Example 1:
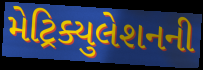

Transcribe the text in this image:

મેટ્રિક્યુલેશનની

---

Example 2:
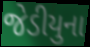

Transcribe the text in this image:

જેડીયુના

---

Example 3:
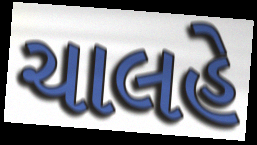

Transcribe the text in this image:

ચાલહે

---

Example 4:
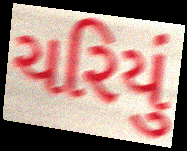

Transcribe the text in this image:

ચરિયું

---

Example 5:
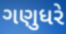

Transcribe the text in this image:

ગણુધરે